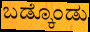
ಬಡ್ಕೊಂಡು